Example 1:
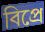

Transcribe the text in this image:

বিপ্রে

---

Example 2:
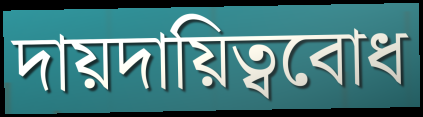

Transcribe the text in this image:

দায়দায়িত্ববোধ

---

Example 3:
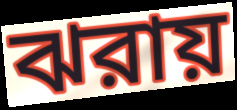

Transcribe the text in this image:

ঝরায়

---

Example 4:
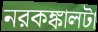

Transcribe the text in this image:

নরকঙ্কালটা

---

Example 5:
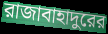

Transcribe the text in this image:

রাজাবাহাদুরের